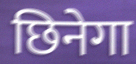
छिनेगा